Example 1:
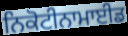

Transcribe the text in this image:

ਨਿਕੋਟੀਨਾਮਾਈਡ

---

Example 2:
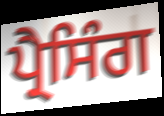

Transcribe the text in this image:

ਪ੍ਰੈਸਿੰਗ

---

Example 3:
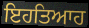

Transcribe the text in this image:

ਇਹਤਿਆਹ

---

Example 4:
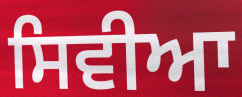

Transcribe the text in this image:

ਸਿਵੀਆ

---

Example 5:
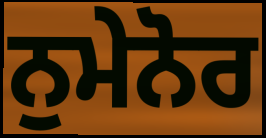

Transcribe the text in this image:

ਨੁਮੇਨੋਰ